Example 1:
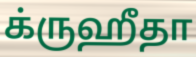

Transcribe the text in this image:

க்ருஹீதா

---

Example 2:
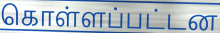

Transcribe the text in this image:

கொள்ளப்பட்டன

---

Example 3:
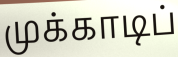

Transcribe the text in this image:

முக்காடிப்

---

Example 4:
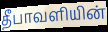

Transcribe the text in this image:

தீபாவளியின்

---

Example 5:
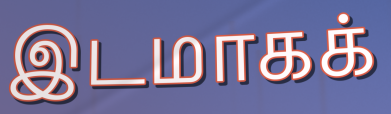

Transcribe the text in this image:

இடமாகக்